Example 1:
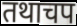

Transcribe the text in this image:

तथाचप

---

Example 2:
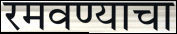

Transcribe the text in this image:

रमवण्याचा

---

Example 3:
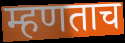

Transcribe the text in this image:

म्हणताच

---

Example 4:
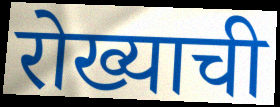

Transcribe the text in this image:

रोख्याची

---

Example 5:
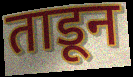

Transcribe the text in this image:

ताडून